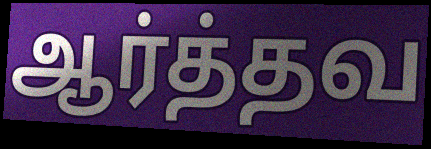
ஆர்த்தவ